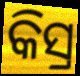
କିସ୍ର